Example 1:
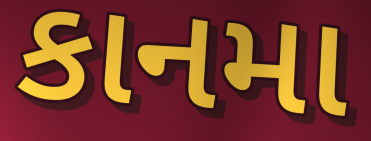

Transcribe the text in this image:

કાનમા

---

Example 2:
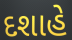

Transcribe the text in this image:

દશાહે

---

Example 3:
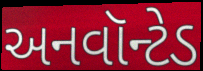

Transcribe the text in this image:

અનવૉન્ટેડ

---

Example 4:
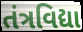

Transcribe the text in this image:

તંત્રવિદ્યા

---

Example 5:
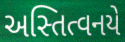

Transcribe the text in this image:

અસ્તિત્વનયે